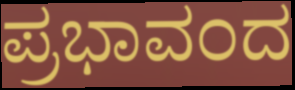
ಪ್ರಭಾವಂದ